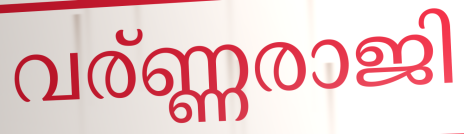
വര്ണ്ണരാജി